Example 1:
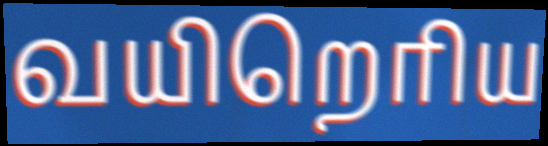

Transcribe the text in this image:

வயிறெரிய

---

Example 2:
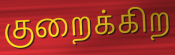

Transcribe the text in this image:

குறைக்கிற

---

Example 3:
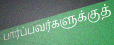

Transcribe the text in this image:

பார்ப்பவர்களுக்குத்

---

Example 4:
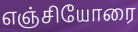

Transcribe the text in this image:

எஞ்சியோரை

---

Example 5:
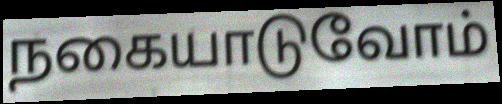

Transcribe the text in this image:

நகையாடுவோம்